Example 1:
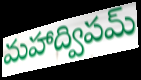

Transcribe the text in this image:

మహాద్విపమ్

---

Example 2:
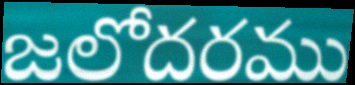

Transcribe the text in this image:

జలోదరము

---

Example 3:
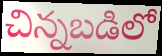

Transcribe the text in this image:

చిన్నబడిలో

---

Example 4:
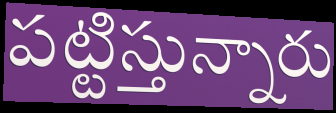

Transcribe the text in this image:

పట్టిస్తున్నారు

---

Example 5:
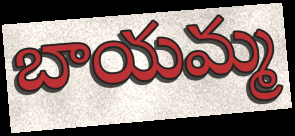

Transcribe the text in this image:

బాయమ్మ